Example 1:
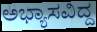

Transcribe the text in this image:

ಅಭ್ಯಾಸವಿದ್ದ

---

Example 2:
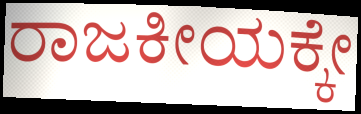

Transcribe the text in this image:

ರಾಜಕೀಯಕ್ಕೇ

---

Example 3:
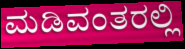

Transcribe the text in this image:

ಮಡಿವಂತರಲ್ಲಿ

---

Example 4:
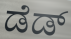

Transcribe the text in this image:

ಡೆಡ್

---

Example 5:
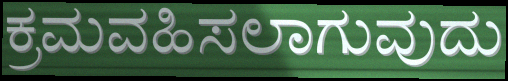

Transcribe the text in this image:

ಕ್ರಮವಹಿಸಲಾಗುವುದು